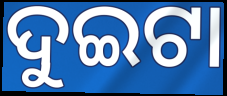
ଦୁଇଟା